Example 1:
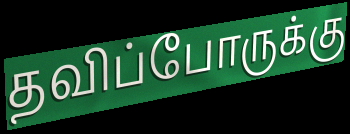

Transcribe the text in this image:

தவிப்போருக்கு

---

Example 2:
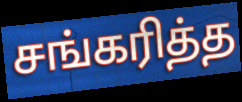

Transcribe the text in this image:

சங்கரித்த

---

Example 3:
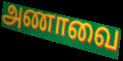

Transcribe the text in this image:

அணாவை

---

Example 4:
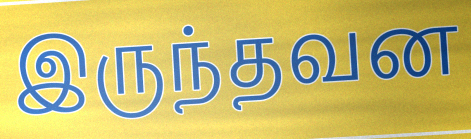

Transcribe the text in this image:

இருந்தவன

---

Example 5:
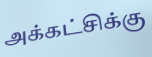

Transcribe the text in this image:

அக்கட்சிக்கு